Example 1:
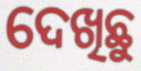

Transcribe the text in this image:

ଦେଖିଛୁ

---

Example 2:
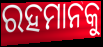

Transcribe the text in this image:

ରହମାନକୁ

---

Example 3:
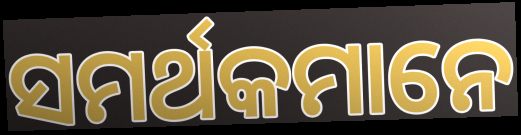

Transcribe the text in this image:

ସମର୍ଥକମାନେ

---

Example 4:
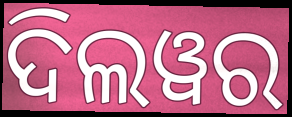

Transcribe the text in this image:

ଦିଲୱର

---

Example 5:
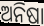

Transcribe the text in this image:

ଅନିଷା